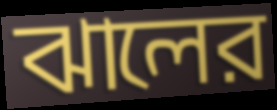
ঝালের